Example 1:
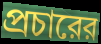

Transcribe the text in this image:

প্রচারের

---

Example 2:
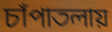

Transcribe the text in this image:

চাঁপাতলায়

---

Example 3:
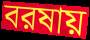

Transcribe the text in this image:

বরষায়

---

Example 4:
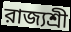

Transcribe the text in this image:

রাজ্যশ্রী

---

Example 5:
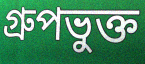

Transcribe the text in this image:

গ্রুপভুক্ত